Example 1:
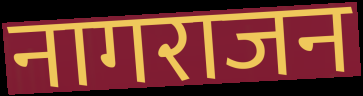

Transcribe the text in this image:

नागराजन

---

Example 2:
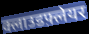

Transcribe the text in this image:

क्लाउडफ़्लेयर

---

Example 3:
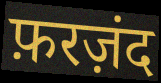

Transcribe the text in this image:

फ़रज़ंद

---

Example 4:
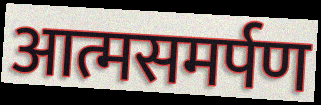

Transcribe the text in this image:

आत्मसमर्पण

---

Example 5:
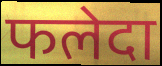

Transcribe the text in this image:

फलेदा